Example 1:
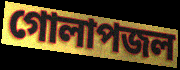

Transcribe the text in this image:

গোলাপজল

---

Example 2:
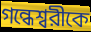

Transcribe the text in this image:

গন্ধেশ্বরীকে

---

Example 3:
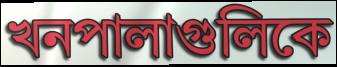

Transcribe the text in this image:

খনপালাগুলিকে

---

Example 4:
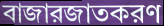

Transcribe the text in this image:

বাজারজাতকরণ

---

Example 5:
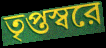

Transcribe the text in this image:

তৃপ্তস্বরে